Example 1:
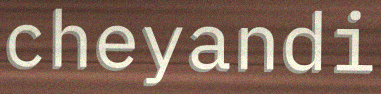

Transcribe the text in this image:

cheyandi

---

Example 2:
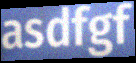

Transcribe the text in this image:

asdfgf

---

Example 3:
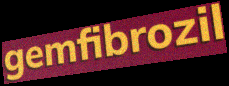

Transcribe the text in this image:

gemfibrozil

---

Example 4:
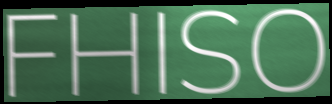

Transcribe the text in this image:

FHISO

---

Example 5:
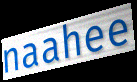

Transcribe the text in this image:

naahee